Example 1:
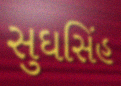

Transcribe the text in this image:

સુઘસિંહ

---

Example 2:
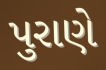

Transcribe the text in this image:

પુરાણે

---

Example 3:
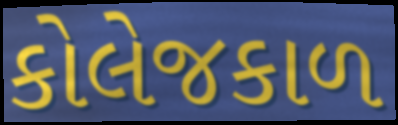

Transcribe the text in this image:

કોલેજકાળ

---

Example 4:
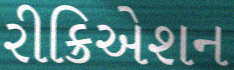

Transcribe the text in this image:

રીક્રિએશન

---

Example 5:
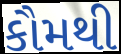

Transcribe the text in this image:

કૌમથી